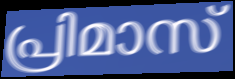
പ്രിമാസ്